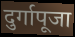
दुर्गापूजा